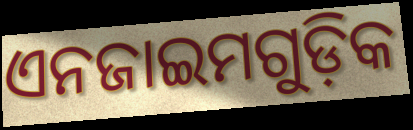
ଏନଜାଇମଗୁଡ଼ିକ